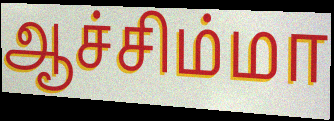
ஆச்சிம்மா